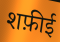
शफ़ीई